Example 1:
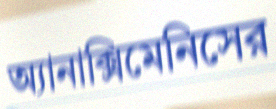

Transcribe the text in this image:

অ্যানাক্সিমেনিসের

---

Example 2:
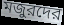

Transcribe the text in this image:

মজুরদের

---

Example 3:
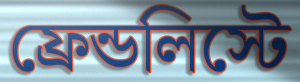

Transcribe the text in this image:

ফ্রেন্ডলিস্টে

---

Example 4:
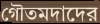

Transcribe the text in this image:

গৌতমদাদের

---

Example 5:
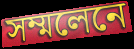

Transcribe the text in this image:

সম্মলেনে